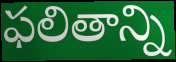
ఫలితాన్ని